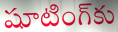
షూటింగ్‌కు